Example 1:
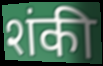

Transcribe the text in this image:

शंकी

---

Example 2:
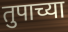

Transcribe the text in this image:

तुपाच्या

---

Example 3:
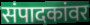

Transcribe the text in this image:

संपादकांवर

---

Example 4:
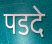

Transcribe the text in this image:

पडदे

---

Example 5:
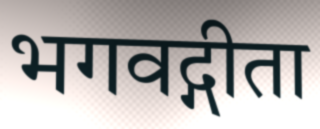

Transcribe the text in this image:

भगवद्गीता